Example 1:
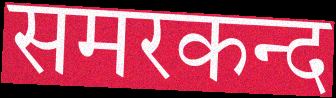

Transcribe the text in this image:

समरकन्द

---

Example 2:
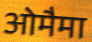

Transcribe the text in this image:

ओमैमा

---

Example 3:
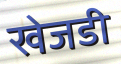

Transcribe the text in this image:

खेजडी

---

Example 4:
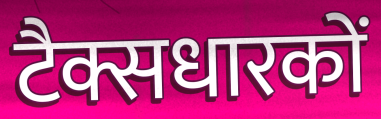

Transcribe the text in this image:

टैक्सधारकों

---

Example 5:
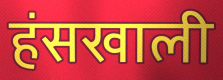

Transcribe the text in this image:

हंसखाली